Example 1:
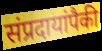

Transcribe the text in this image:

संप्रदायांपैकी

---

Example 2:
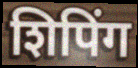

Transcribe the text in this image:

शिपिंग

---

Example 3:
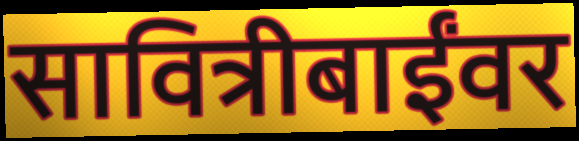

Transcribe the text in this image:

सावित्रीबाईंवर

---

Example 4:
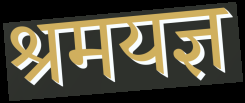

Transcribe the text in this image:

श्रमयज्ञ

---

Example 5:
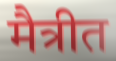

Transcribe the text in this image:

मैत्रीत